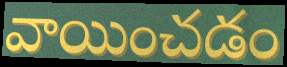
వాయించడం